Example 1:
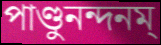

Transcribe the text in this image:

পাণ্ডুনন্দনম্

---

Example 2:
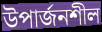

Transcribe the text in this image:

উপার্জনশীল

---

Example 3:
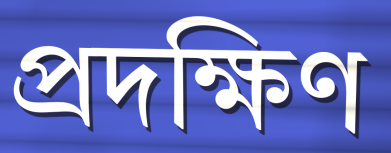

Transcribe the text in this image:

প্রদক্ষিণ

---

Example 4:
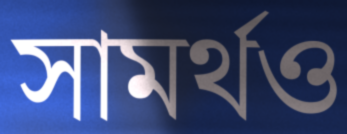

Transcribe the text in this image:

সামর্থও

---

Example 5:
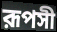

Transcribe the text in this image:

রূপসী